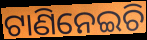
ଟାଣିନେଇଚି